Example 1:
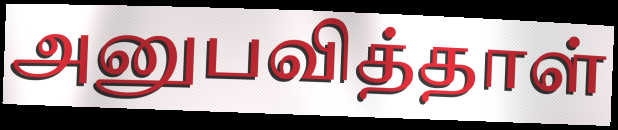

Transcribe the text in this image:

அனுபவித்தாள்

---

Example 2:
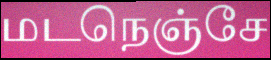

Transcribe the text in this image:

மடநெஞ்சே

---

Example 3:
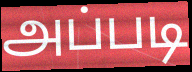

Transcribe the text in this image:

அப்படி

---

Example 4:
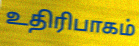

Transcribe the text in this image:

உதிரிபாகம்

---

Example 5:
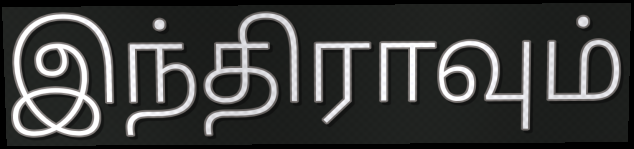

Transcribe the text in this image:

இந்திராவும்